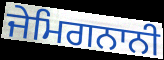
ਜੇਮਿਗਨਾਨੀ